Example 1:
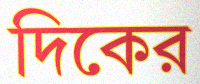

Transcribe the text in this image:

দিকের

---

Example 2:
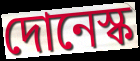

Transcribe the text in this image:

দোনেস্ক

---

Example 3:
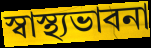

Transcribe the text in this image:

স্বাস্থ্যভাবনা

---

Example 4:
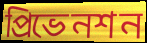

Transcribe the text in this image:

প্রিভেনশন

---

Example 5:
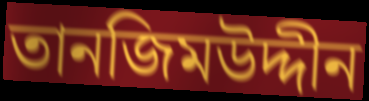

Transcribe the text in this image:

তানজিমউদ্দীন